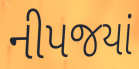
નીપજયાં